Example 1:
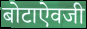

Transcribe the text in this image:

बोटाऐवजी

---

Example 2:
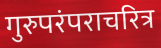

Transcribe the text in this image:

गुरुपरंपराचरित्र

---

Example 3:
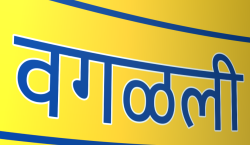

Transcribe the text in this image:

वगळली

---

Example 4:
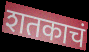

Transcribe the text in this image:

शतकाचं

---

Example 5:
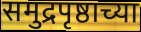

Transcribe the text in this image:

समुद्रपृष्ठाच्या